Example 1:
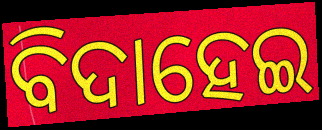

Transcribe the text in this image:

ବିଦାହେଇ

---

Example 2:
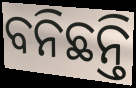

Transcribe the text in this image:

ବନିଛନ୍ତି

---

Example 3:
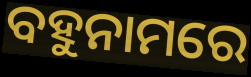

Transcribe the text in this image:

ବହୁନାମରେ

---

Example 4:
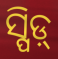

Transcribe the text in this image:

ସ୍ପିଡ଼୍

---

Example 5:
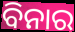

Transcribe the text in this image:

ବିନାର